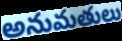
అనుమతులు